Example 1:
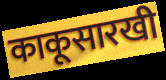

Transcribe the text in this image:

काकूसारखी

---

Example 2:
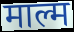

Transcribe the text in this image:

माल्म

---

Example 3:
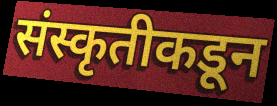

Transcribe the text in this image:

संस्कृतीकडून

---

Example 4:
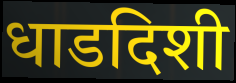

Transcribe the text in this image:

धाडदिशी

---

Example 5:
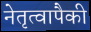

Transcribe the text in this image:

नेतृत्वापैकी